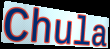
Chula